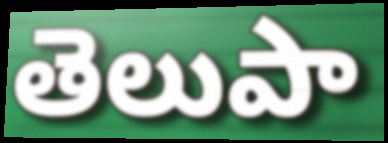
తెలుపా